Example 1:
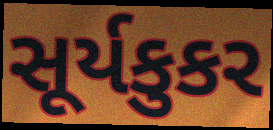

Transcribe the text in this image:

સૂર્યકુકર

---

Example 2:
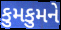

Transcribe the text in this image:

કુમકુમને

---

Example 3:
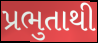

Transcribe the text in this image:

પ્રભુતાથી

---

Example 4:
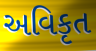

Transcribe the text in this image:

અવિકૃત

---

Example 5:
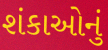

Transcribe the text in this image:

શંકાઓનું